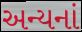
અન્યનાં